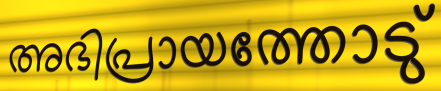
അഭിപ്രായത്തോടു്